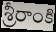
శ్రీరాంకి